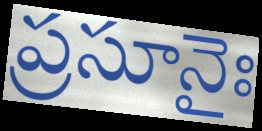
ప్రసూనైః